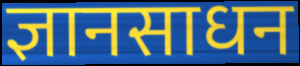
ज्ञानसाधन